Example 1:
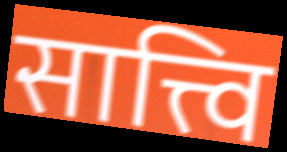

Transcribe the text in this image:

सात्त्वि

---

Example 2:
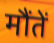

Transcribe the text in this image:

मौंतें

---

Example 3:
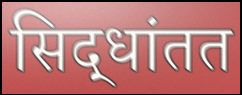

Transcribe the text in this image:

सिद्धांतत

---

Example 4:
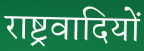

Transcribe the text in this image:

राष्ट्रवादियों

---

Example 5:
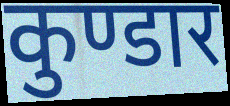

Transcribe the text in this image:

कुण्डार